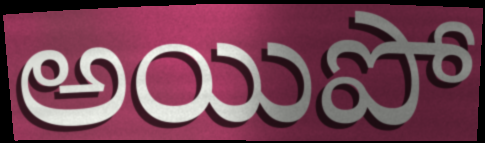
అయిపో